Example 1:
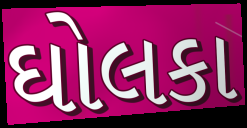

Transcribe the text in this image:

ઘોલકા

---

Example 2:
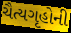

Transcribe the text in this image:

ચૈત્યગૃહોની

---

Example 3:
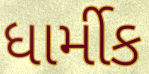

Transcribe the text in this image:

ધાર્મીક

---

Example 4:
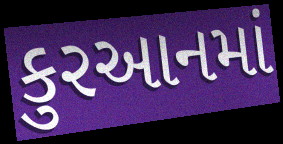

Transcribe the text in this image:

કુરઆનમાં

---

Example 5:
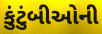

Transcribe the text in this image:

કુંટુંબીઓની